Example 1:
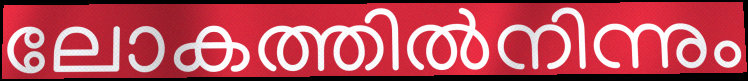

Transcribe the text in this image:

ലോകത്തിൽനിന്നും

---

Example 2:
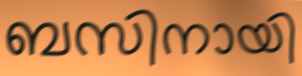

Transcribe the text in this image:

ബസിനായി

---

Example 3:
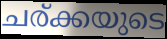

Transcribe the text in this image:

ചര്ക്കയുടെ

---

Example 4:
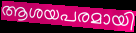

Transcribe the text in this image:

ആശയപരമായി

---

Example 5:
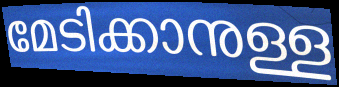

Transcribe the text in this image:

മേടിക്കാനുള്ള